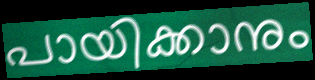
പായിക്കാനും